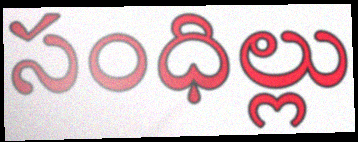
సంధిల్లు